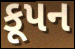
કૂપન